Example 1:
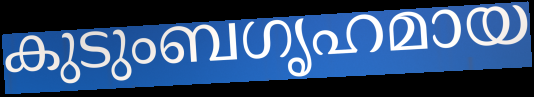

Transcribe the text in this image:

കുടുംബഗൃഹമായ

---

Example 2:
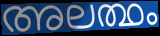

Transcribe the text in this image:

അലത്ഥം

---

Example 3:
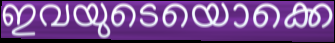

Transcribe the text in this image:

ഇവയുടെയൊക്കെ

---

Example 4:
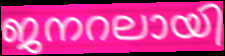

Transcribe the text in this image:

ജനറലായി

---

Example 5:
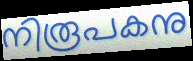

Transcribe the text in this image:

നിരൂപകനു